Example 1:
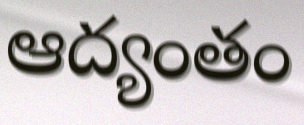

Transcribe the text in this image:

ఆద్యంతం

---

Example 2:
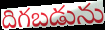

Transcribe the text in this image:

దిగబడును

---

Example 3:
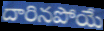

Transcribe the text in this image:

దారినపోయే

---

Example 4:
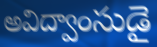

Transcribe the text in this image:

అవిద్వాంసుడై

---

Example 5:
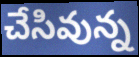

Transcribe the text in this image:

చేసివున్న